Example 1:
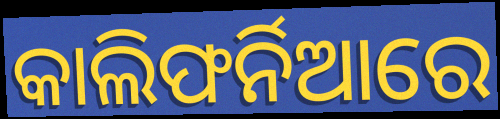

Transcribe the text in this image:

କାଲିଫର୍ନିଆରେ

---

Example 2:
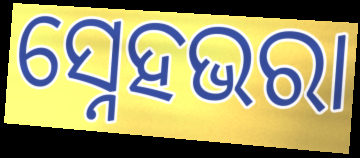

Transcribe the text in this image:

ସ୍ନେହଭରା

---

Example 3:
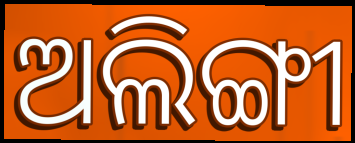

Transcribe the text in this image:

ଅଲିଙ୍ଗୀ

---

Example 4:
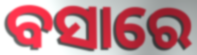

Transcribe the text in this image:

ବସାରେ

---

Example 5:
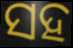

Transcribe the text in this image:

ସହ